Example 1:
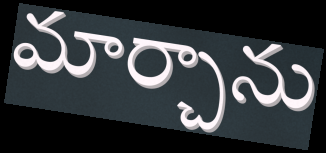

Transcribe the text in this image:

మార్చాను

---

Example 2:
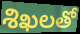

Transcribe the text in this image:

శిఖలతో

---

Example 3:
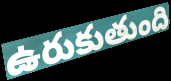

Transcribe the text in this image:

ఉరుకుతుంది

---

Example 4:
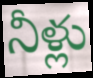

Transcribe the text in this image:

నీళ్లు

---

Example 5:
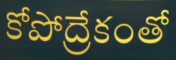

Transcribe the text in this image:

కోపోద్రేకంతో